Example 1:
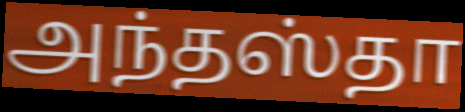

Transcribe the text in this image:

அந்தஸ்தா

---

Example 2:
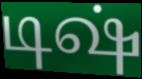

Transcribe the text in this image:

டிஷ்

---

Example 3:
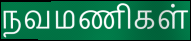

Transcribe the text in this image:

நவமணிகள்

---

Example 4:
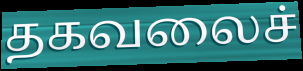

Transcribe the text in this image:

தகவலைச்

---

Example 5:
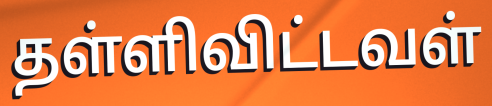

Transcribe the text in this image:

தள்ளிவிட்டவள்